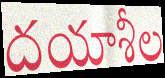
దయాశీల